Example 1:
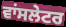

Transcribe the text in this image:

ਵਾਂਸਲੇਟਰ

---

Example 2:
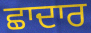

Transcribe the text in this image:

ਛਾਦਾਰ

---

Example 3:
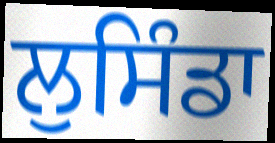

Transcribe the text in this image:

ਲੁਸਿੰਡਾ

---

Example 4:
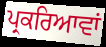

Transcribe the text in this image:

ਪ੍ਰਕਰਿਆਵਾਂ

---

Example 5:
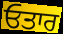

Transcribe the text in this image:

ਓਤਾਰ